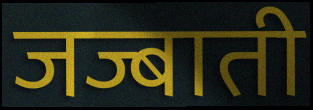
जज्‍बाती